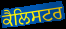
ਕੈਲਿਸਟਰ